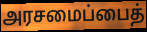
அரசமைப்பைத்